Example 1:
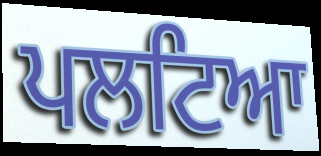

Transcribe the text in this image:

ਪਲਟਿਆ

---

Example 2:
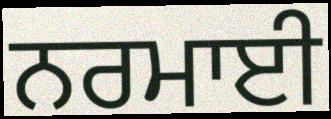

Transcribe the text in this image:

ਨਰਮਾਈ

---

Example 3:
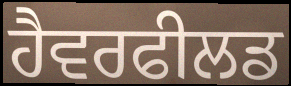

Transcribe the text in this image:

ਹੈਵਰਫੀਲਡ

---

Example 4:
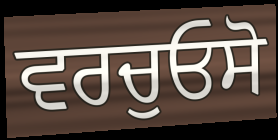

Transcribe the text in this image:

ਵਰਚੁਓਸੋ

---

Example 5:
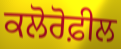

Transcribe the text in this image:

ਕਲੋਰੋਫ਼ੀਲ